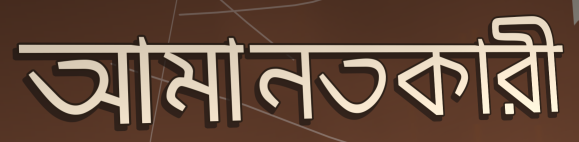
আমানতকারী